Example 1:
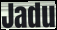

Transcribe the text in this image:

Jadu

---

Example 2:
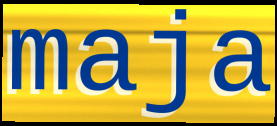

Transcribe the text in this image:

maja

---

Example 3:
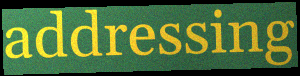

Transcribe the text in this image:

addressing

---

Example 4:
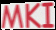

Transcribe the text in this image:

MKI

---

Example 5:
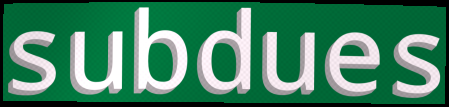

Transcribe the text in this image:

subdues